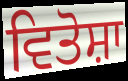
ਵਿਤੋਸ਼ਾ